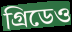
গ্রিডেও